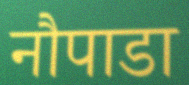
नौपाडा